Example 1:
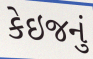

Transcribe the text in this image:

કેઇજનું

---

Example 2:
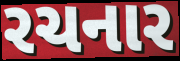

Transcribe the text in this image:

રચનાર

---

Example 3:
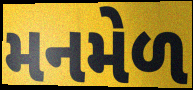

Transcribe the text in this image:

મનમેળ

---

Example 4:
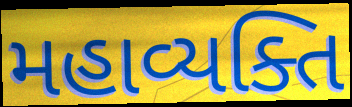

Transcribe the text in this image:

મહાવ્યક્તિ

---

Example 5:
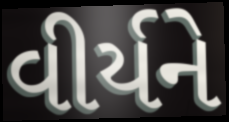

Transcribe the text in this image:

વીર્યને